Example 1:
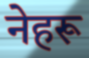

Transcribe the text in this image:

नेहरू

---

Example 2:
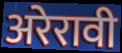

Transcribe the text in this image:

अरेरावी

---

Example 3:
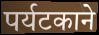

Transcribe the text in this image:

पर्यटकाने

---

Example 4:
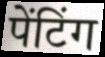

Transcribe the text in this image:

पेंटिंग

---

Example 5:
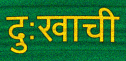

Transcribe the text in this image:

दुःखाची